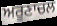
ਅਰੂਣਾਚਲ